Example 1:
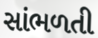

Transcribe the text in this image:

સાંભળતી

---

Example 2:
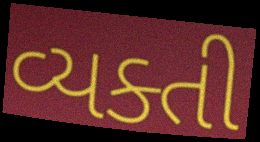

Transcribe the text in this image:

વ્યક્તી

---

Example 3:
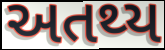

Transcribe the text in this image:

અતથ્ય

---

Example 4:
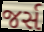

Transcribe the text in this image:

જર્સ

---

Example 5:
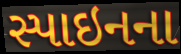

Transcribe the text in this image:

સ્પાઇનના